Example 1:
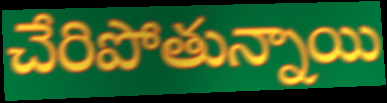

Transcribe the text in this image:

చేరిపోతున్నాయి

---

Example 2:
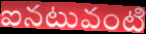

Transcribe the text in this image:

ఐనటువంటి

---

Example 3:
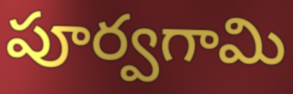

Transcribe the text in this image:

పూర్వగామి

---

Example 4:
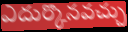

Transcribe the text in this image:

ఎదుర్కొనవచ్చు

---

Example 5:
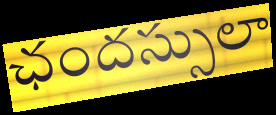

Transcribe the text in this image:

ఛందస్సులా